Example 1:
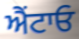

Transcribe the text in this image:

ਐਂਟਾਓ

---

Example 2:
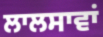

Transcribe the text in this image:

ਲਾਲਸਾਵਾਂ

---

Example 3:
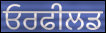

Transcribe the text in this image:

ਓਰਫੀਲਡ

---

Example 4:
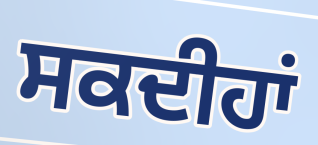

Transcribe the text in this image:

ਸਕਦੀਹਾਂ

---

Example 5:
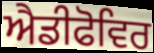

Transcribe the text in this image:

ਐਡੀਫੋਵਿਰ